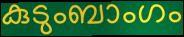
കുടുംബാംഗം